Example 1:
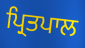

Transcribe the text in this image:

ਪ੍ਰਿਤਪਾਲ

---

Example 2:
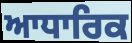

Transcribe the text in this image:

ਆਧਾਰਿਕ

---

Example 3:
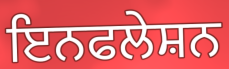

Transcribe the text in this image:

ਇਨਫਲੇਸ਼ਨ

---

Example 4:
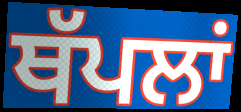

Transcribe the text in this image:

ਥੱਪਲਾਂ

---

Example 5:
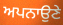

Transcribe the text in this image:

ਅਪਨਾਉਣੇ